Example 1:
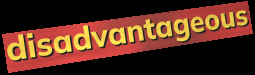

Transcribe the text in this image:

disadvantageous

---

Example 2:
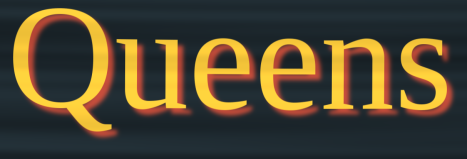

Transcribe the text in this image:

Queens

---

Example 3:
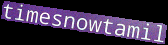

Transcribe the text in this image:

timesnowtamil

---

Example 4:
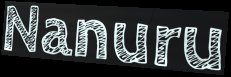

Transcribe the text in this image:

Nanuru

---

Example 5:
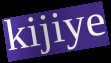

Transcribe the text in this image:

kijiye